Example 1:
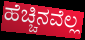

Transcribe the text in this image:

ಹೆಚ್ಚಿನವೆಲ್ಲ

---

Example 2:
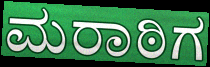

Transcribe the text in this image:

ಮರಾಠಿಗ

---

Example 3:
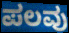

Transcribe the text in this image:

ಪಲವು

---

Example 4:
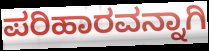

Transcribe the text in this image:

ಪರಿಹಾರವನ್ನಾಗಿ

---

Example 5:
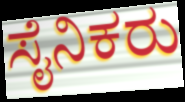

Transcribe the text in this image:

ಸೈನಿಕರು